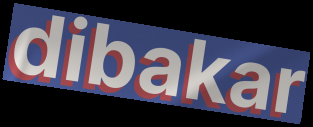
dibakar